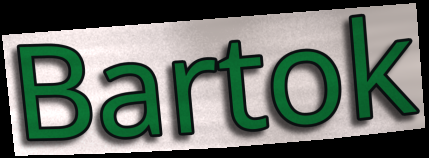
Bartok